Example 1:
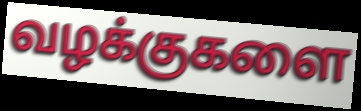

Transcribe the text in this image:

வழக்குகளை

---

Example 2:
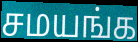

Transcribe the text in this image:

சமயங்க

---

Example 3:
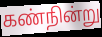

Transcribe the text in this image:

கண்நின்று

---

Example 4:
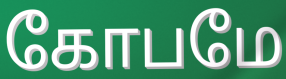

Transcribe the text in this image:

கோபமே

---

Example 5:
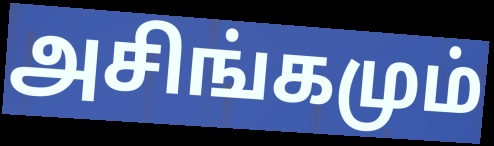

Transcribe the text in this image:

அசிங்கமும்